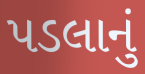
પડલાનું